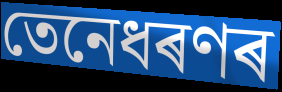
তেনেধৰণৰ